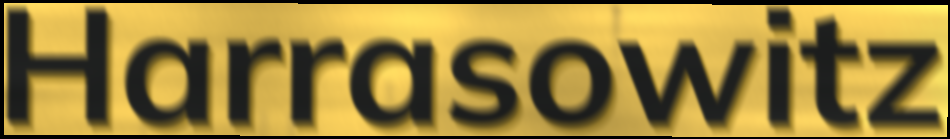
Harrasowitz